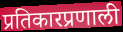
प्रतिकारप्रणाली